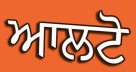
ਆਲਟੋ